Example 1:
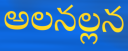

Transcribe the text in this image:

అలనల్లన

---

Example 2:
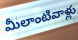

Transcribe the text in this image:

మీలాంటివాళ్లు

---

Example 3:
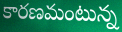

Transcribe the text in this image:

కారణమంటున్న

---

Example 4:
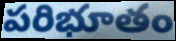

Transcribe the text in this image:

పరిభూతం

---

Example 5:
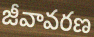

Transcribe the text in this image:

జీవావరణ